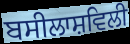
ਬਸੀਲਾਸ਼ਵਿਲੀ